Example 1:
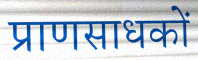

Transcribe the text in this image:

प्राणसाधकों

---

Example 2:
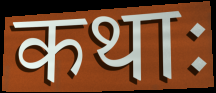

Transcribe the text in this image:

कथाः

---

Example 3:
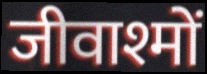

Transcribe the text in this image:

जीवाश्मों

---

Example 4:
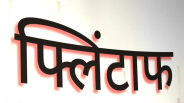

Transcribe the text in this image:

फ्लिंटाफ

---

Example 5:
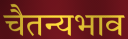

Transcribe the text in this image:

चैतन्यभाव